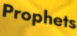
Prophets